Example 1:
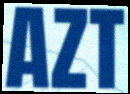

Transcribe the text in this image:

AZT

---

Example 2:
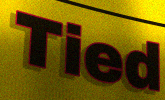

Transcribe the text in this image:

Tied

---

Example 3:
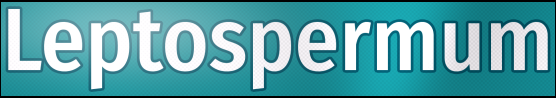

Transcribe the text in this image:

Leptospermum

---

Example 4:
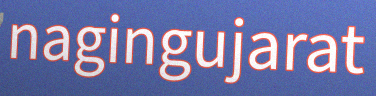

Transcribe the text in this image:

nagingujarat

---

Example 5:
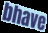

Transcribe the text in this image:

bhave